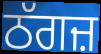
ਠੱਗਜ਼